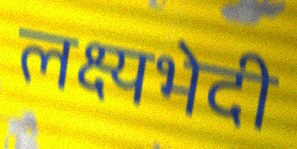
लक्ष्यभेदी